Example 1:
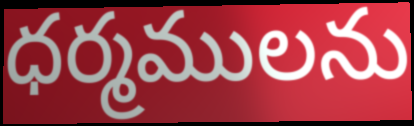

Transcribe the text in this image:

ధర్మములను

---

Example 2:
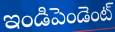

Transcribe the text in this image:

ఇండిపెండెంట్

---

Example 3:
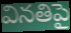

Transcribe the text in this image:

వినతిపై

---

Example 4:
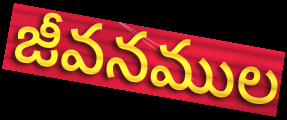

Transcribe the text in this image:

జీవనముల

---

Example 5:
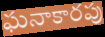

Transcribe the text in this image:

ఘనాకారపు